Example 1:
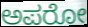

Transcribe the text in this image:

ಅಪರೋ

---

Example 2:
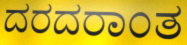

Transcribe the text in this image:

ದರದರಾಂತ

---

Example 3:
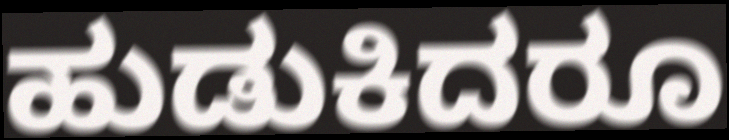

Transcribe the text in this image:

ಹುಡುಕಿದರೂ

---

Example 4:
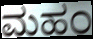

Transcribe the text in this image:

ಮಹಂ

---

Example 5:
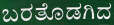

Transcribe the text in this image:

ಬರತೊಡಗಿದ